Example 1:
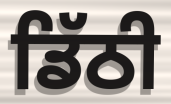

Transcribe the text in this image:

ਡਿੱਠੀ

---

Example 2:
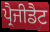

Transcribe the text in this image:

ਪ੍ਰੈਜੀਡੈਟ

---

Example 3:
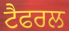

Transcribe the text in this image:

ਟੈਫਰਲ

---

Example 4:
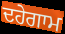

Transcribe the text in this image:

ਦਹੇਗਾਮ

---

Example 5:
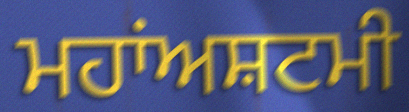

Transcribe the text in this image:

ਮਹਾਂਅਸ਼ਟਮੀ